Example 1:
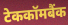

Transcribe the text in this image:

टेककॉमबैंक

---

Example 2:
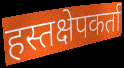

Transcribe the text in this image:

हस्तक्षेपकर्ता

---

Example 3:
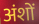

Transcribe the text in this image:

अंशों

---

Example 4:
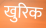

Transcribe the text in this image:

खुरिक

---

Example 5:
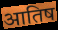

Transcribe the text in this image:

आतिष